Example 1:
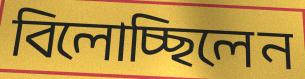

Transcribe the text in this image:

বিলোচ্ছিলেন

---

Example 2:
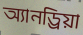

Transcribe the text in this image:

অ্যানড্রিয়া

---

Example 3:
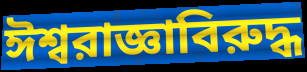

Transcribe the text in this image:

ঈশ্বরাজ্ঞাবিরুদ্ধ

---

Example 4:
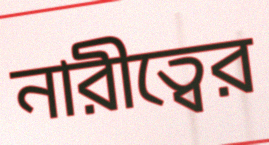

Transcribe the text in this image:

নারীত্বের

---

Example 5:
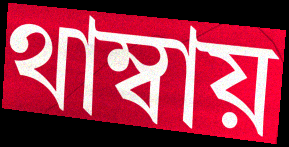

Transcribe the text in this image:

থাম্বায়